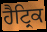
ਹੈਟ੍ਰਿਕ